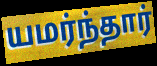
யமர்ந்தார்